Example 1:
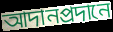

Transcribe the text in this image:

আদানপ্রদানে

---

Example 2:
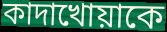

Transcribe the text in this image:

কাদাখোয়াকে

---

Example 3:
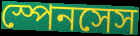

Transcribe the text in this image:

স্পেনসেস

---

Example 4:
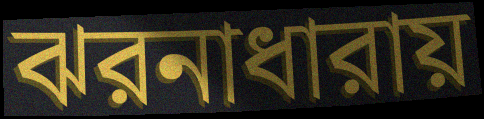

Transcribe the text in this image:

ঝরনাধারায়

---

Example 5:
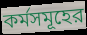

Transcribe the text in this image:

কর্মসমূহের